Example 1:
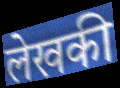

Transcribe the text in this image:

लेखकी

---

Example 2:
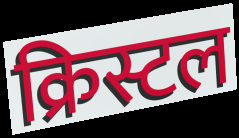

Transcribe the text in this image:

क्रिस्टल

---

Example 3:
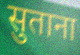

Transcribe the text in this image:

सुताना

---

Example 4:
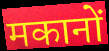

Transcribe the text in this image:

मकानों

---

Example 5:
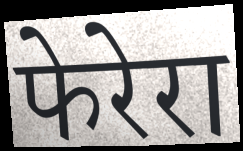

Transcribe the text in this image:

फेरेरा